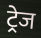
ट्रेज